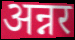
अन्नर